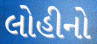
લોહીનો